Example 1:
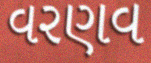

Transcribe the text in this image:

વરણવ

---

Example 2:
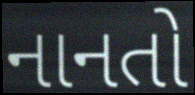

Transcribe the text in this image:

નાનતો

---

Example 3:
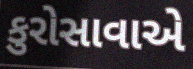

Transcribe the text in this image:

કુરોસાવાએ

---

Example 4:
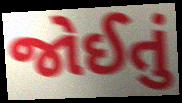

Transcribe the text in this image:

જોઈતું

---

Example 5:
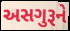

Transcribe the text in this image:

અસગુરૂને